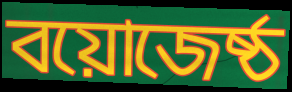
বয়োজেষ্ঠ